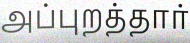
அப்புறத்தார்